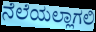
ನೆಲೆಯಲ್ಲಾಗಲಿ